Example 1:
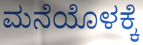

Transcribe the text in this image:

ಮನೆಯೊಳಕ್ಕೆ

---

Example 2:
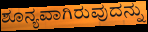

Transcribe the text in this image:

ಶೂನ್ಯವಾಗಿರುವುದನ್ನು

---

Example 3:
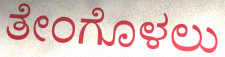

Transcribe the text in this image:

ತೇಂಗೊಳಲು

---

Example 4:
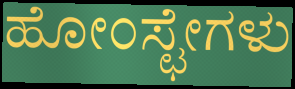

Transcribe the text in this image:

ಹೋಂಸ್ಟೇಗಳು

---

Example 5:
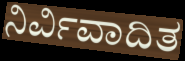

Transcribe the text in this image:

ನಿರ್ವಿವಾದಿತ